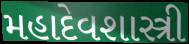
મહાદેવશાસ્ત્રી